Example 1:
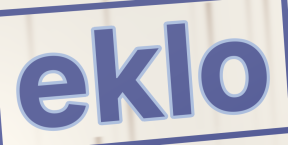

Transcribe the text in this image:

eklo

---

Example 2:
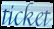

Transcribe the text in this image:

ticket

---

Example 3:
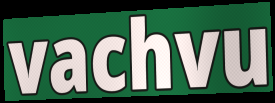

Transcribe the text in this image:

vachvu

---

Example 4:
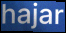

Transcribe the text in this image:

hajar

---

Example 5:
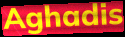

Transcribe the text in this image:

Aghadis